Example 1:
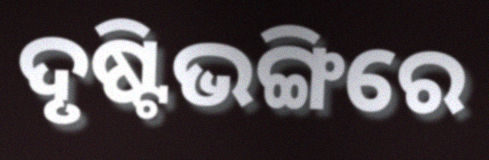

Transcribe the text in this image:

ଦୃଷ୍ଟିଭଙ୍ଗିରେ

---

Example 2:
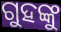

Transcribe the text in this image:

ଗୁହଙ୍କୁ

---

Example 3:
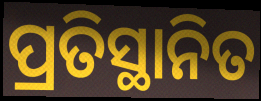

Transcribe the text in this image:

ପ୍ରତିସ୍ଥାନିତ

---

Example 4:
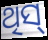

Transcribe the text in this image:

ଥିସ୍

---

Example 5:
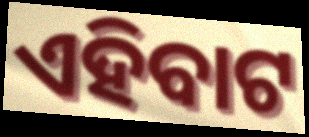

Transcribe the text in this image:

ଏହିବାଟ